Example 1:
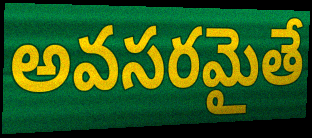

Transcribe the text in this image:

అవసరమైతే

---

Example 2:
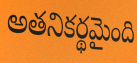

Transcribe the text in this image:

అతనికర్థమైంది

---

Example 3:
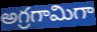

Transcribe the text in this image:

అగ్రగామిగా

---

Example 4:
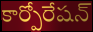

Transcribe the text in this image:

కార్పోరేషన్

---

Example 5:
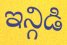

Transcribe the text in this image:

ఇన్గిడి